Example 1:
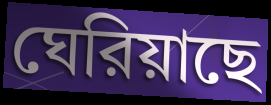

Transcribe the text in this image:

ঘেরিয়াছে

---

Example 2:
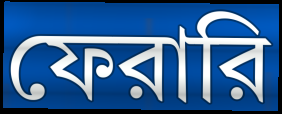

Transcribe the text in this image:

ফেরারি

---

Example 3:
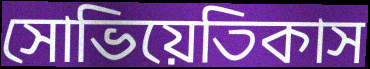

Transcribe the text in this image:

সোভিয়েতিকাস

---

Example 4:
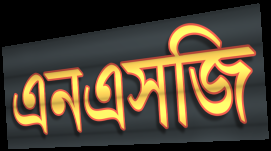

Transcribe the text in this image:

এনএসজি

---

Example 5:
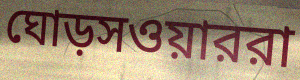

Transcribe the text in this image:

ঘোড়সওয়াররা